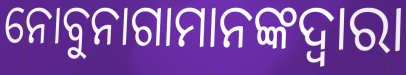
ନୋବୁନାଗାମାନଙ୍କଦ୍ୱାରା